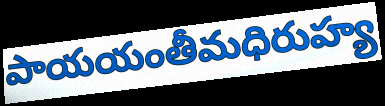
పాయయంతీమధిరుహ్య